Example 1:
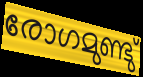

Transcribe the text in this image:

രോഗമുണ്ടു്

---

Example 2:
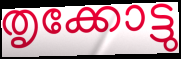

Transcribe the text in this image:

തൃക്കോട്ടു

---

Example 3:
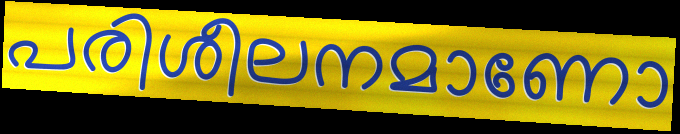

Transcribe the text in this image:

പരിശീലനമാണോ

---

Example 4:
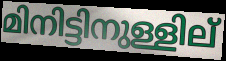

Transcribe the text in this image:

മിനിട്ടിനുള്ളില്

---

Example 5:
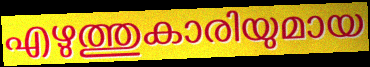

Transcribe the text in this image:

എഴുത്തുകാരിയുമായ